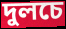
দুলচে